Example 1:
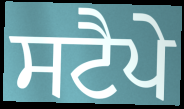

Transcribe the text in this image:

ਸਟੈਪੇ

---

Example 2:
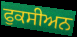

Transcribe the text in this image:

ਫੁਕਸੀਅਨ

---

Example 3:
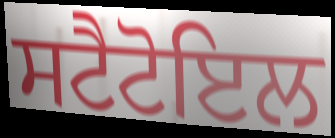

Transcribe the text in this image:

ਸਟੈਟੋਇਲ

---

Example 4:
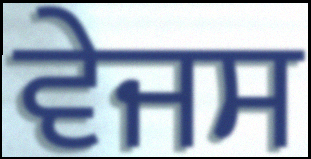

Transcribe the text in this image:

ਵੇਜਸ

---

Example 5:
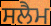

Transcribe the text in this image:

ਸਲੈਮ